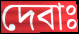
দেবাঃ